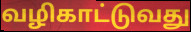
வழிகாட்டுவது